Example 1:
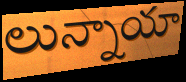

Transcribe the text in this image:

లున్నాయా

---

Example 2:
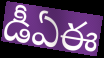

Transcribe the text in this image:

డీఏఈ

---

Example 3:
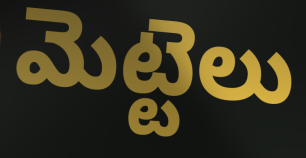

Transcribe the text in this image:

మెట్టెలు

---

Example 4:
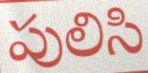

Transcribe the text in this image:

పులిసి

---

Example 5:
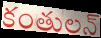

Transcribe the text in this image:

కంతులన్